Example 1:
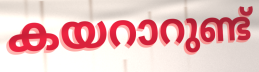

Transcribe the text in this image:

കയറാറുണ്ട്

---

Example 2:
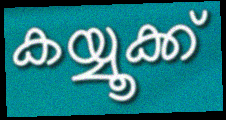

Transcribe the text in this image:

കയ്യൂക്ക്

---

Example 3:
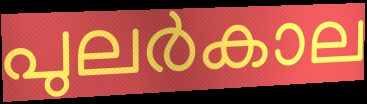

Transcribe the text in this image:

പുലർകാല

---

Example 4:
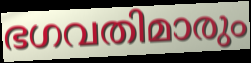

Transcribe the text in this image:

ഭഗവതിമാരും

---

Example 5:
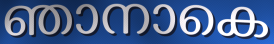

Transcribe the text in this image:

ഞാനാകെ